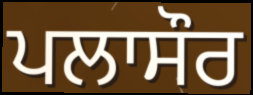
ਪਲਾਸੌਰ